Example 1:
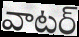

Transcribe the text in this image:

వాటర్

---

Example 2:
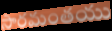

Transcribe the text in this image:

సారమంతయు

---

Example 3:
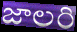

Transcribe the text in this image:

జాలరి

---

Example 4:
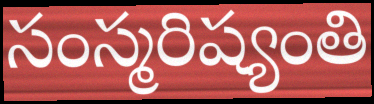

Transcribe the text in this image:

సంస్మరిష్యంతి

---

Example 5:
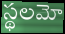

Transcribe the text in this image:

స్థలమో